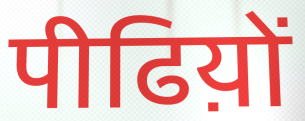
पीढिय़ों